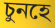
চুনহে